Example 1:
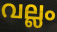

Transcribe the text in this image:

വല്ലം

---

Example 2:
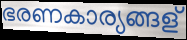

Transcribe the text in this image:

ഭരണകാര്യങ്ങള്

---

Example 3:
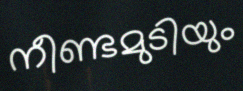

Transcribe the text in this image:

നീണ്ടമുടിയും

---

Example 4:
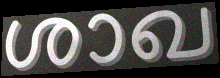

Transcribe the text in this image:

ശാഖ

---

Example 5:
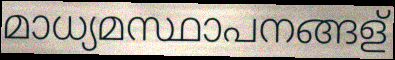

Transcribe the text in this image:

മാധ്യമസ്ഥാപനങ്ങള്